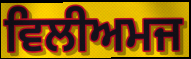
ਵਿਲੀਅਮਜ